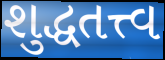
શુદ્ધતત્ત્વ